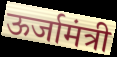
ऊर्जामंत्री